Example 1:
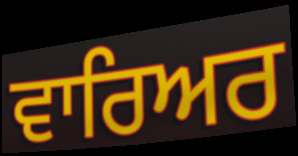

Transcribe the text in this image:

ਵਾਰਿਅਰ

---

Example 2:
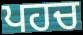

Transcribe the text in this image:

ਪਹਚ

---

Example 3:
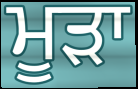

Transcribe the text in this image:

ਮੂੜਾ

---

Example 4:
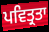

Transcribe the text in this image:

ਪਵਿਤ੍ਰਤਾ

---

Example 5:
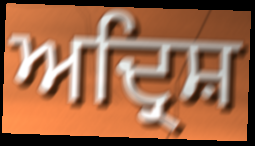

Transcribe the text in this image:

ਅਦ੍ਰਿਸ਼